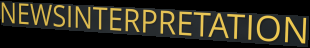
NEWSINTERPRETATION